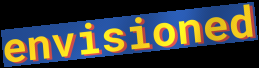
envisioned